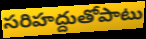
సరిహద్దుతోపాటు